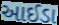
આઈડા